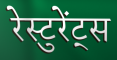
रेस्टुरेंट्स